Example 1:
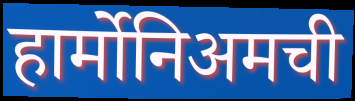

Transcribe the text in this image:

हार्मोनिअमची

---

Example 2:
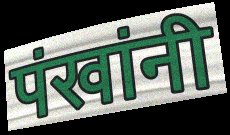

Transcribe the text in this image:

पंखांनी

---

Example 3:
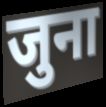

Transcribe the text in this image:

जुना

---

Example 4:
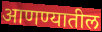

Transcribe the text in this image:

आणण्यातील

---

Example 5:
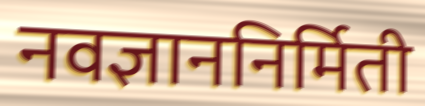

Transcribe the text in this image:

नवज्ञाननिर्मिती